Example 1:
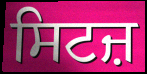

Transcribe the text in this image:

ਸਿਟਜ਼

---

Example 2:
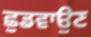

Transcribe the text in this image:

ਛੁਡਵਾਉਣ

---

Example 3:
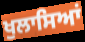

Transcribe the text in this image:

ਖੁਲਾਸਿਆਂ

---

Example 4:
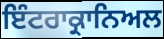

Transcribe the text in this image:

ਇੰਟਰਾਕ੍ਰਾਨਿਅਲ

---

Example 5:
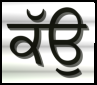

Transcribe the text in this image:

ਕੱਉ